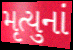
મૃત્યુનાં